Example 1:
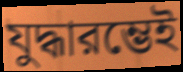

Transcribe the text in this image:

যুদ্ধারম্ভেই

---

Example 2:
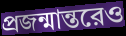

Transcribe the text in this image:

প্রজন্মান্তরেও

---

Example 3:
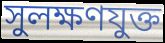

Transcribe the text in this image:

সুলক্ষণযুক্ত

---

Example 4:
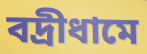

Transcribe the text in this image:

বদ্রীধামে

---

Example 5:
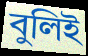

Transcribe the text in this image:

বুলিই